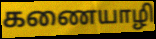
கணையாழி